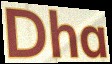
Dha